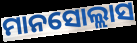
ମାନସୋଲ୍ଲାସ